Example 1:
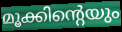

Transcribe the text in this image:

മൂക്കിന്റെയും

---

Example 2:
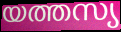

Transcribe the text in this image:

യത്തസ്യ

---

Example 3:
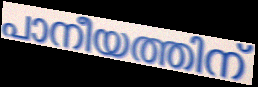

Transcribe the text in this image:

പാനീയത്തിന്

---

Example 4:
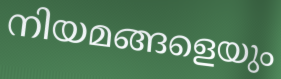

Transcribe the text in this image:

നിയമങ്ങളെയും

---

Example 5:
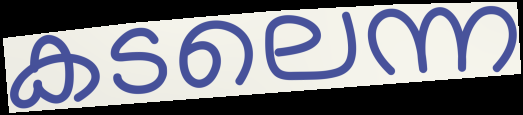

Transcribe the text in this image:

കടലെന്ന